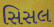
સિસલ